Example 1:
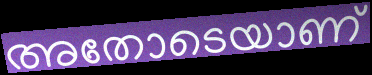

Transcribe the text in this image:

അതോടെയാണ്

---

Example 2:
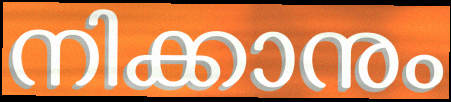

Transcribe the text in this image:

നിക്കാനും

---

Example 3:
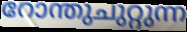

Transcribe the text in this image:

റോന്തുചുറ്റുന്ന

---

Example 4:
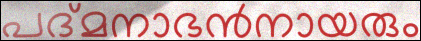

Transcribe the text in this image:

പദ്മനാഭൻനായരും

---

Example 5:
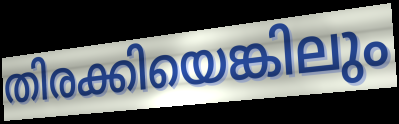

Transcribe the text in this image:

തിരക്കിയെങ്കിലും